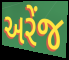
અરેંજ